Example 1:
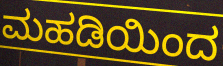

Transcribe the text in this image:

ಮಹಡಿಯಿಂದ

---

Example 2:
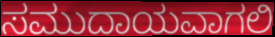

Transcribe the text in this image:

ಸಮುದಾಯವಾಗಲಿ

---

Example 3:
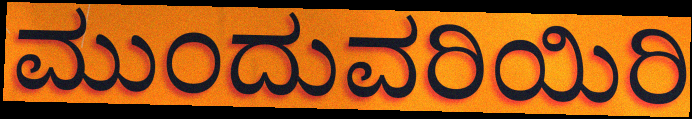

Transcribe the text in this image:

ಮುಂದುವರಿಯಿರಿ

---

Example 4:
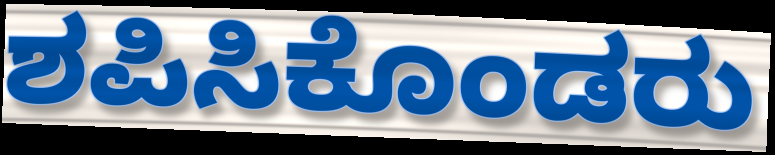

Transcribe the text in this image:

ಶಪಿಸಿಕೊಂಡರು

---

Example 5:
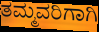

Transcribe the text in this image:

ತಮ್ಮವರಿಗಾಗಿ